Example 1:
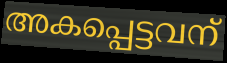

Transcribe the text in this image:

അകപ്പെട്ടവന്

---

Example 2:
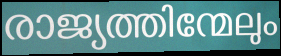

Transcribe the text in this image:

രാജ്യത്തിന്മേലും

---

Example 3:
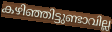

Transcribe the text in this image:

കഴിഞ്ഞിട്ടുണ്ടാവില്ല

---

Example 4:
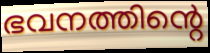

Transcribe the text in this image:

ഭവനത്തിന്റെ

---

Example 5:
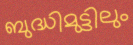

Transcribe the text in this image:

ബുദ്ധിമുട്ടിലും